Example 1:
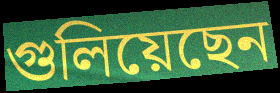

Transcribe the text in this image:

গুলিয়েছেন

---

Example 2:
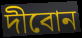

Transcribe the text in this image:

দীবোন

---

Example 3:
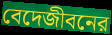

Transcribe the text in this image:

বেদেজীবনের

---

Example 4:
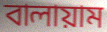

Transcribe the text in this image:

বালায়াম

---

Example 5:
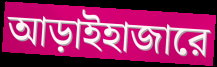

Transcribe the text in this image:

আড়াইহাজারে